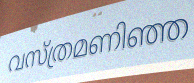
വസ്ത്രമണിഞ്ഞ